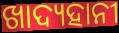
ଖାଦ୍ୟହାନୀ